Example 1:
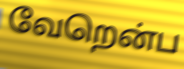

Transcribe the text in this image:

வேறென்ப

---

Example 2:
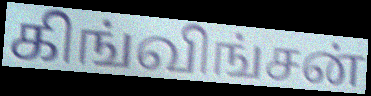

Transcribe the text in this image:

கிங்விங்சன்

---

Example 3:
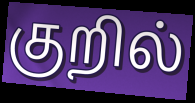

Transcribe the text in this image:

குறில்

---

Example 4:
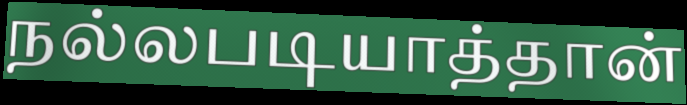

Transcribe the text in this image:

நல்லபடியாத்தான்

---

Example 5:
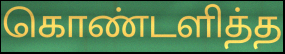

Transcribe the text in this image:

கொண்டளித்த